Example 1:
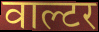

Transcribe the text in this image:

वाल्टर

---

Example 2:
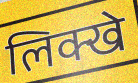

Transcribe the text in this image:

लिक्खे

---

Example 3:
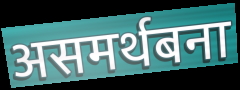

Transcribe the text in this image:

असमर्थबना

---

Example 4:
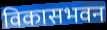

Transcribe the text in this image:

विकासभवन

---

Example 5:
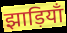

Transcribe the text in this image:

झाड़ियाँ